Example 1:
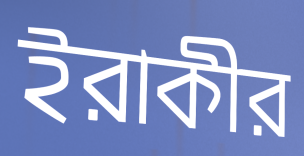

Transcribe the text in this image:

ইরাকীর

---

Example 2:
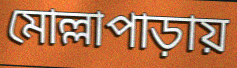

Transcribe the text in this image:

মোল্লাপাড়ায়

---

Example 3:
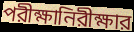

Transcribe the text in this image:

পরীক্ষানিরীক্ষার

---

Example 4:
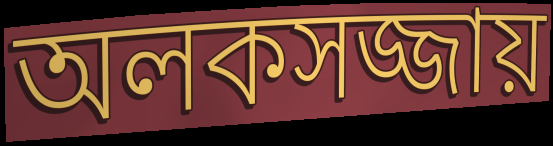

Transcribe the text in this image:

অলকসজ্জায়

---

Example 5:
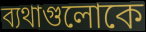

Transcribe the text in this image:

ব্যথাগুলোকে